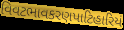
વિવટભાવકરણપાટિહારિયં